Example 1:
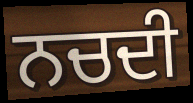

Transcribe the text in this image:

ਨਚਦੀ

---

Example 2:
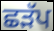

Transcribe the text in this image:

ਛੜੱਪ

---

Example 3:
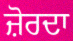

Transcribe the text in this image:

ਜ਼ੋਰਦਾ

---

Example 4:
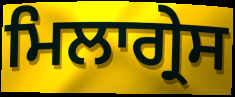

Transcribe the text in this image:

ਮਿਲਾਗ੍ਰੇਸ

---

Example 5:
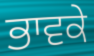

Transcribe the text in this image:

ਭਾਵਕੇ